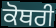
ਕੋਥਰੀ